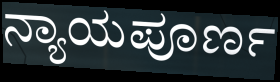
ನ್ಯಾಯಪೂರ್ಣ